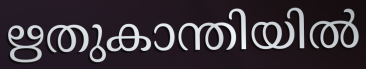
ഋതുകാന്തിയിൽ